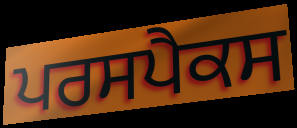
ਪਰਸਪੈਕਸ